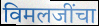
विमलजींचा